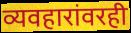
व्यवहारांवरही